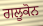
ਗਲੂਕੋਨ